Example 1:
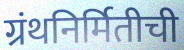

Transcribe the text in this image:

ग्रंथनिर्मितीची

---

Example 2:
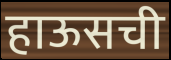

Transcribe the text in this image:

हाऊसची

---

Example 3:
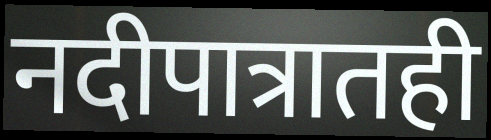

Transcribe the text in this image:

नदीपात्रातही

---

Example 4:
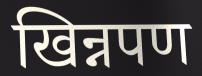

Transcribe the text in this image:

खिन्नपण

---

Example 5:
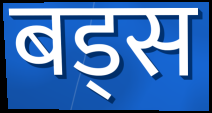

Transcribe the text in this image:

बड्स